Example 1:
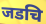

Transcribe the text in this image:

जडचि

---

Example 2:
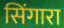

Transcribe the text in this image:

सिंगारा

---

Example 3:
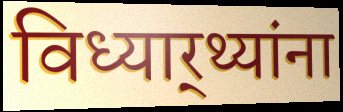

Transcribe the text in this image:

विध्यार्थ्यांना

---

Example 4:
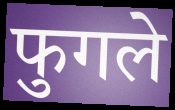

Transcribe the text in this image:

फुगले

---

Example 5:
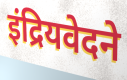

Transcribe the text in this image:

इंद्रियवेदने